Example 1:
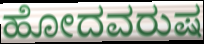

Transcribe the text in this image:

ಹೋದವರುಷ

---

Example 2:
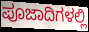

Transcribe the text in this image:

ಪೂಜಾದಿಗಳಲ್ಲಿ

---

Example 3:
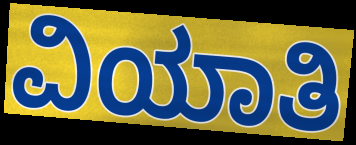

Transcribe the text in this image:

ವಿಯಾತಿ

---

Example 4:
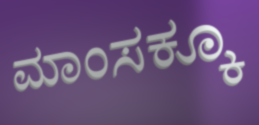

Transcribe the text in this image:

ಮಾಂಸಕ್ಕೂ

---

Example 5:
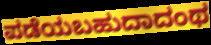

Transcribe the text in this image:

ಪಡೆಯಬಹುದಾದಂಥ